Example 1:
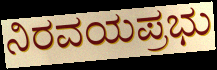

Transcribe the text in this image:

ನಿರವಯಪ್ರಭು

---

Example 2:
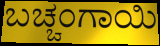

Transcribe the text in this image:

ಬಚ್ಚಂಗಾಯಿ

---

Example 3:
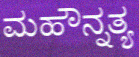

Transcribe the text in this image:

ಮಹೌನ್ನತ್ಯ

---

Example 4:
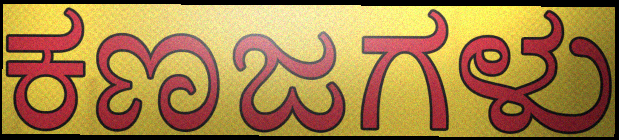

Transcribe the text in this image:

ಕಣಜಗಳು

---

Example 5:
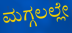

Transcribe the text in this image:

ಮಗ್ಗಲಲ್ಲೇ